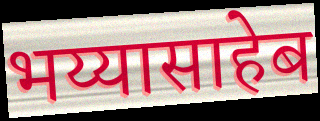
भय्यासाहेब